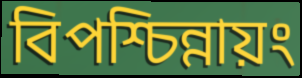
বিপশ্চিন্নায়ং